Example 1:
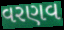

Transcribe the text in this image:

વરણવ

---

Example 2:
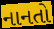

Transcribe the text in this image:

નાનતો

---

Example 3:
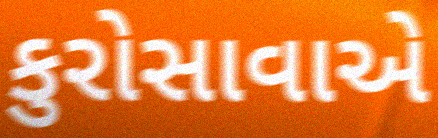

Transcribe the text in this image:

કુરોસાવાએ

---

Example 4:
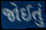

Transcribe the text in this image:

જોઈતું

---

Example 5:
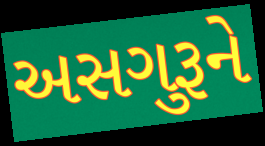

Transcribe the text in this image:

અસગુરૂને